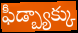
ఫీడ్బ్యాక్కు